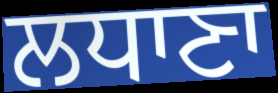
ਲਧਾਣਾ